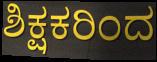
ಶಿಕ್ಷಕರಿಂದ